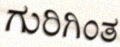
ಗುರಿಗಿಂತ